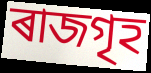
ৰাজগৃহ